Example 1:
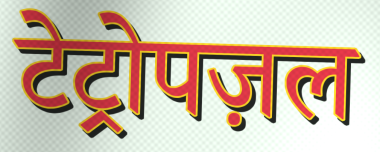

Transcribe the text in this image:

टेट्रोपज़ल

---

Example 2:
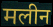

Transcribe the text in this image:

मलीन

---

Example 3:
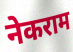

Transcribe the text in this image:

नेकराम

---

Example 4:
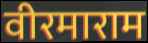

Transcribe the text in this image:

वीरमाराम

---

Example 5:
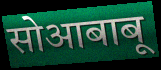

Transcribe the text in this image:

सोआबाबू